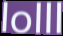
lolll